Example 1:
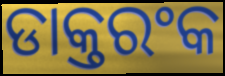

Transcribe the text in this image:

ଡାକ୍ତରଂକ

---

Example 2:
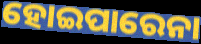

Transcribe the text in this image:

ହୋଇପାରେନା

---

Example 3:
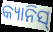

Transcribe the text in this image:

କ୍ୟାନିସ୍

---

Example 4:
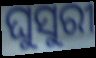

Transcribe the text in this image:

ଘୁସୁରୀ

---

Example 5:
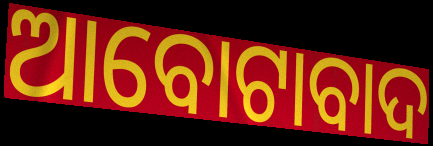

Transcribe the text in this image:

ଆବୋଟାବାଦ